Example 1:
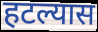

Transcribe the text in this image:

हटल्यास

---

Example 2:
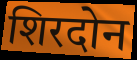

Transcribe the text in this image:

शिरदोन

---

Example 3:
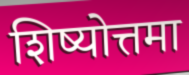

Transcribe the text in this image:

शिष्योत्तमा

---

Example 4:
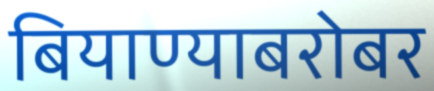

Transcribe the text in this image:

बियाण्याबरोबर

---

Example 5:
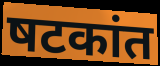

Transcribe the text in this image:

षटकांत